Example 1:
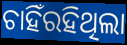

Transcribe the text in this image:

ଚାହିଁରହିଥିଲା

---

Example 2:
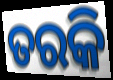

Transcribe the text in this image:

ତରକି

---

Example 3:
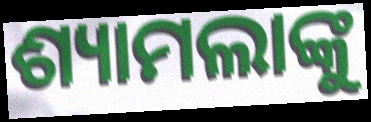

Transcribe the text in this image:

ଶ୍ୟାମଲାଙ୍କୁ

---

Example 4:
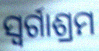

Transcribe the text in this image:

ସ୍ୱର୍ଗାଶ୍ରମ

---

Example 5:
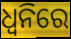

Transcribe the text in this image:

ଧ୍ୱନିରେ